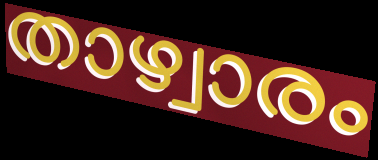
താഴ്വാരം